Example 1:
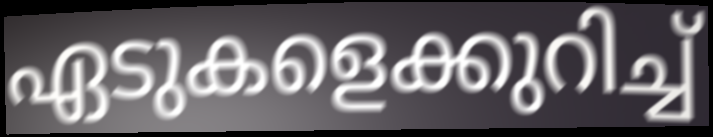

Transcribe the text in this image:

ഏടുകളെക്കുറിച്ച്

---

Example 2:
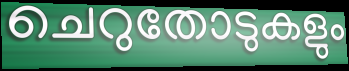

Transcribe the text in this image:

ചെറുതോടുകളും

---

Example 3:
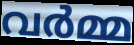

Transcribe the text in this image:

വർമ്മ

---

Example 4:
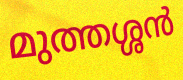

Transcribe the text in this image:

മുത്തശ്ശൻ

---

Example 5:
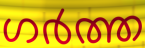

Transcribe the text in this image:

ഗർത്ത